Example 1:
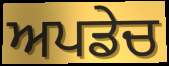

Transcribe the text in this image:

ਅਪਡੇਚ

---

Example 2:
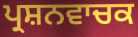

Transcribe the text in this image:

ਪ੍ਰਸ਼ਨਵਾਚਕ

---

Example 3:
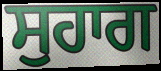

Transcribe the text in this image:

ਸੁਹਾਗ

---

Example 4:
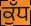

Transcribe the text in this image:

ਕੁੱਧ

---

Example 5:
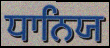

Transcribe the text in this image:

ਧਾਨਿਯ